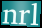
nrl